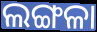
ଲଙ୍ଗଳା